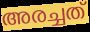
അരച്ചത്